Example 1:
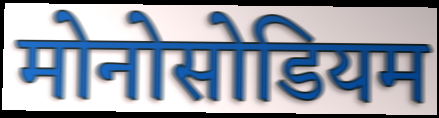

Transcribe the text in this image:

मोनोसोडियम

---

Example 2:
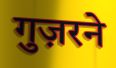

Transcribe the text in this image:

गुज़रने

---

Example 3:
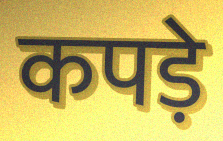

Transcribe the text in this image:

कपड़े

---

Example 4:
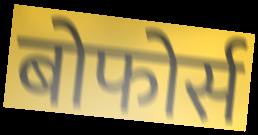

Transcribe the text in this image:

बोफोर्स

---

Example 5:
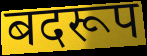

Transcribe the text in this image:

बदरूप